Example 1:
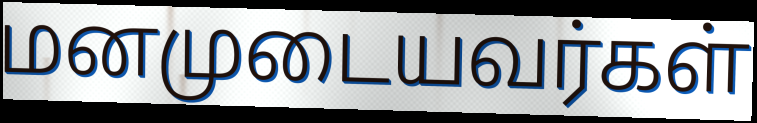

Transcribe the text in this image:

மனமுடையவர்கள்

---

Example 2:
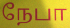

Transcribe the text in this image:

நேபா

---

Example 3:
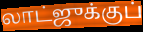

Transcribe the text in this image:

லாட்ஜுக்குப்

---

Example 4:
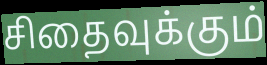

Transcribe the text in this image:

சிதைவுக்கும்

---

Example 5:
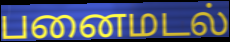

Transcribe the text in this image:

பனைமடல்